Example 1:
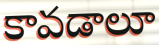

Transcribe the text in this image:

కావడాలూ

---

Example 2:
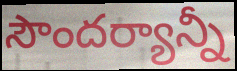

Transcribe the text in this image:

సౌందర్యాన్నీ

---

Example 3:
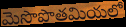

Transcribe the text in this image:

మెసొపొతమియలో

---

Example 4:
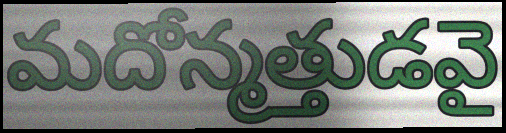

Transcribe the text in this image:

మదోన్మత్తుడవై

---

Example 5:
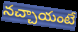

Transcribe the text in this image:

నచ్చాయంటే